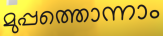
മുപ്പത്തൊന്നാം